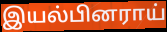
இயல்பினராய்